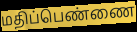
மதிப்பெண்ணை